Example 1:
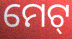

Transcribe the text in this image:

ମେଟ୍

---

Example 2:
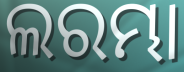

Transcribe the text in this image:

ଲରମ୍ଭା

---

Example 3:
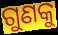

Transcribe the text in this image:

ଗୁଣକୁ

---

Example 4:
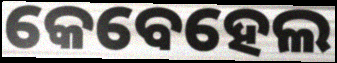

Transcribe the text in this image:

କେବେହେଲ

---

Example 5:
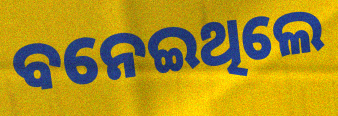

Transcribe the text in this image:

ବନେଇଥିଲେ